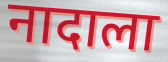
नादाला